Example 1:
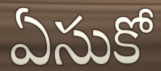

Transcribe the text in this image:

ఏసుకో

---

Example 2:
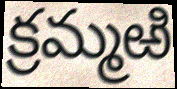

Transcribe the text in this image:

క్రమ్మఱి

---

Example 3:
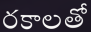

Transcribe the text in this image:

రకాలతో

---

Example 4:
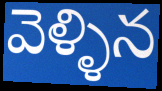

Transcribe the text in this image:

వెళ్ళిన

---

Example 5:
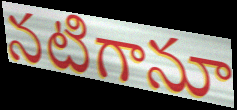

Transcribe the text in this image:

నటిగానూ